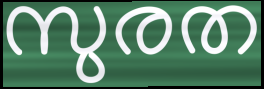
സുരത